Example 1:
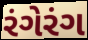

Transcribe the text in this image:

રંગેરંગ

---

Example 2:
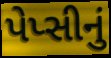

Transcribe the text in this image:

પેપ્સીનું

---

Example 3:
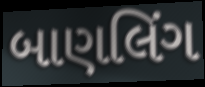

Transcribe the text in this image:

બાણલિંગ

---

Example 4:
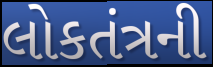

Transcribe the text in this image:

લોકતંત્રની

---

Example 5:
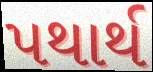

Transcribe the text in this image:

પથાર્થ